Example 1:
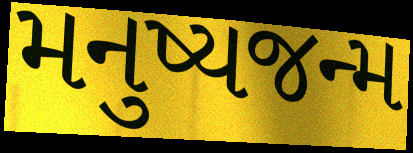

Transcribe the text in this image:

મનુષ્યજન્મ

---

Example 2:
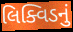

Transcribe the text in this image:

લિક્વિડનું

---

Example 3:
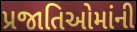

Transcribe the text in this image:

પ્રજાતિઓમાંની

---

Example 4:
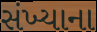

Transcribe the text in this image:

સંખ્યાના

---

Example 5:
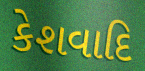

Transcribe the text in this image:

કેશવાદિ